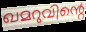
ഖമറുവിന്റെ